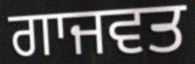
ਗਾਜਵਤ